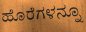
ಹೊರೆಗಳನ್ನೂ